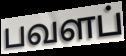
பவளப்